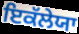
ਇਕੱਲੇਯਾ